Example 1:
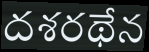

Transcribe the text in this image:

దశరథేన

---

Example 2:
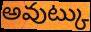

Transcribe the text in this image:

అవుట్కు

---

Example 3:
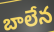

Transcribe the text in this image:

బాలేన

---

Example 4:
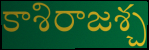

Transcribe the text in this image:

కాశిరాజశ్చ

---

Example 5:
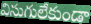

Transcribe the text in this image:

విసుగులేకుండా